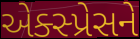
એક્સ્પ્રેસને